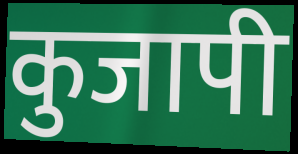
कुजापी